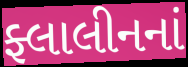
ફ્લાલીનનાં